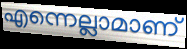
എന്നെല്ലാമാണ്